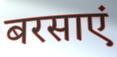
बरसाएं